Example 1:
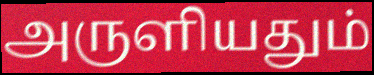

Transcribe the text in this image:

அருளியதும்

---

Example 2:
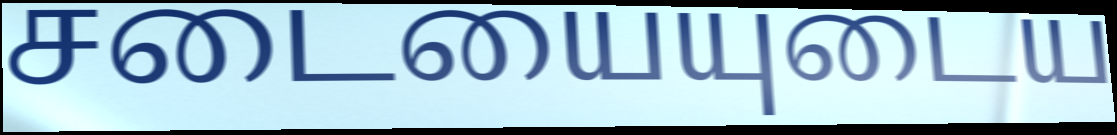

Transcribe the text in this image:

சடையையுடைய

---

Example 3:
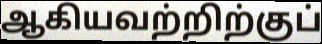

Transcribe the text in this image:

ஆகியவற்றிற்குப்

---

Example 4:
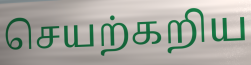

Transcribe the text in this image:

செயற்கறிய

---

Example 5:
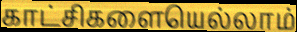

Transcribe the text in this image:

காட்சிகளையெல்லாம்